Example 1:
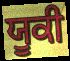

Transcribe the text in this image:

ਯੂਕੀ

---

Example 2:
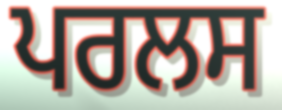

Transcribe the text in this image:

ਪਰਲਸ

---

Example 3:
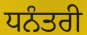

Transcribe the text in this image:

ਧਨੰਤਰੀ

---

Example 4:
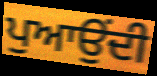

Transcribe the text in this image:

ਪੁਆਉਂਦੀ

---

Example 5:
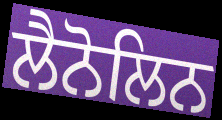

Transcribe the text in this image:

ਲੈਨੋਲਿਨ